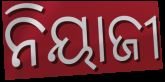
ନିୟାଜୀ